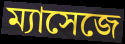
ম্যাসেজে